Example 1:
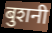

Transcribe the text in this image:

बुशनी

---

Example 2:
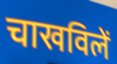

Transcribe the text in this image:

चाखविलें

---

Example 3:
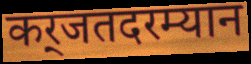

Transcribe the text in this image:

कर्जतदरम्यान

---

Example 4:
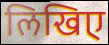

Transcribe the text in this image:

लिखिए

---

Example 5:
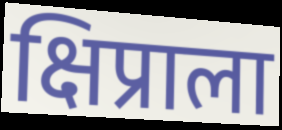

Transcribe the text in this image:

क्षिप्राला